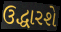
ઉદ્ધારશે